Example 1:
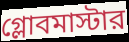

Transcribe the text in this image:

গ্লোবমাস্টার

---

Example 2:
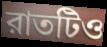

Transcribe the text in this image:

রাতটিও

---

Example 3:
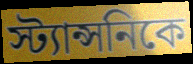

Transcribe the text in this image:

স্ট্যান্সনিকে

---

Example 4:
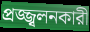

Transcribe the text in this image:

প্রজ্জ্বলনকারী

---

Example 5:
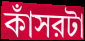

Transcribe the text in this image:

কাঁসরটা